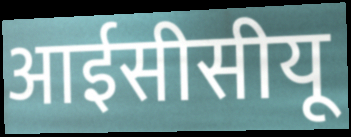
आईसीसीयू